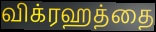
விக்ரஹத்தை